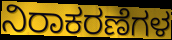
ನಿರಾಕರಣೆಗಳ